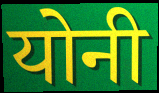
योनी